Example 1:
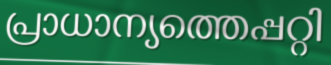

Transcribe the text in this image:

പ്രാധാന്യത്തെപ്പറ്റി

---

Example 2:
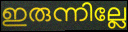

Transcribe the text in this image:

ഇരുന്നില്ലേ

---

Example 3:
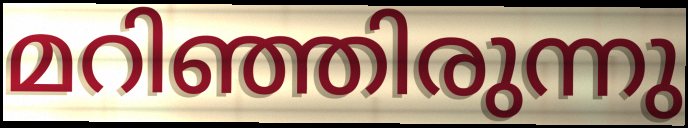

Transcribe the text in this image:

മറിഞ്ഞിരുന്നു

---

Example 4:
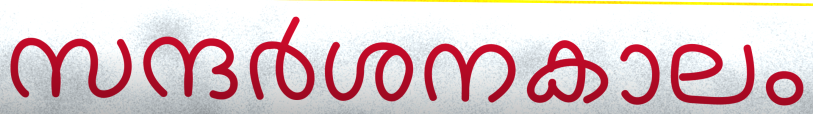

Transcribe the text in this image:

സന്ദർശനകാലം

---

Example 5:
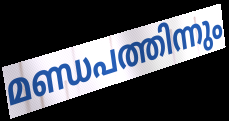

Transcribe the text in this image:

മണ്ഡപത്തിന്നും